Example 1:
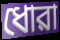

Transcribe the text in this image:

ধোৱা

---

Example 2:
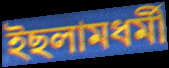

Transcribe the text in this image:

ইছলামধৰ্মী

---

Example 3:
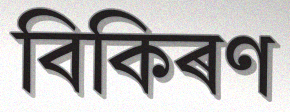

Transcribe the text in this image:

বিকিৰণ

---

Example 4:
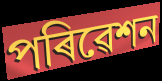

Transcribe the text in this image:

পৰিৱেশন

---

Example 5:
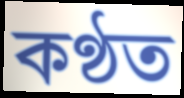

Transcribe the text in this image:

কণ্ঠত